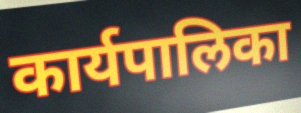
कार्यपालिका